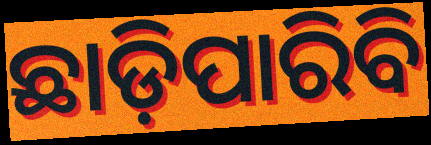
ଛାଡ଼ିପାରିବି